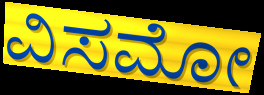
ವಿಸಮೋ